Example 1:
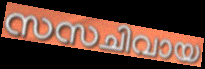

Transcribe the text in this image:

സസചിവായ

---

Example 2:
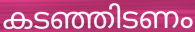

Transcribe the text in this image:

കടഞ്ഞിടണം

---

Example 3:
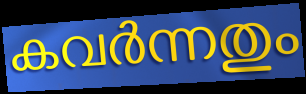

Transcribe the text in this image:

കവർന്നതും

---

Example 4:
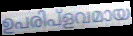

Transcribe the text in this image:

ഉപരിപ്ളവമായ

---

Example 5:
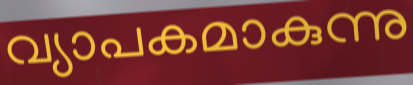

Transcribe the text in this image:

വ്യാപകമാകുന്നു